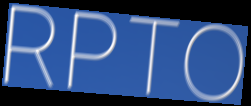
RPTO